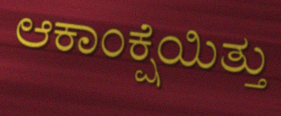
ಆಕಾಂಕ್ಷೆಯಿತ್ತು